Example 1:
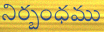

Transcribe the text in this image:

నిర్బంధము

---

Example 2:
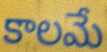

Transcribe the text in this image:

కాలమే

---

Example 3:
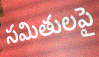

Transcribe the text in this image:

సమితులపై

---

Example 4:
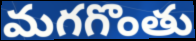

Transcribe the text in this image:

మగగొంతు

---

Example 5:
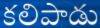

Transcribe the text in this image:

కలిపాడు